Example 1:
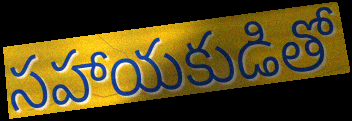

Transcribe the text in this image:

సహాయకుడితో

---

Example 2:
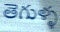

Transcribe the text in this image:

తెగుళ్ళ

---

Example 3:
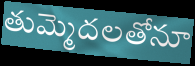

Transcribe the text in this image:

తుమ్మెదలతోనూ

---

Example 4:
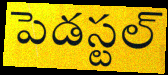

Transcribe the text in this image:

పెడస్టల్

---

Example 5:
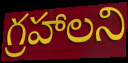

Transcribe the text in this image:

గ్రహాలని